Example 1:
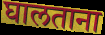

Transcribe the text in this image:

घालताना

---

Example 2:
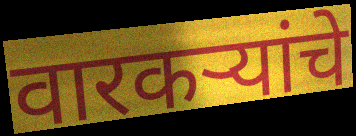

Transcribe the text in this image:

वारकऱ्यांचे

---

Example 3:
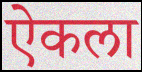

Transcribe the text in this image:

ऐकला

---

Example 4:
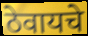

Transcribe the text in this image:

ठेवायचे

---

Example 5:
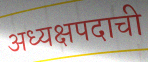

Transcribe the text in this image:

अध्यक्षपदाची